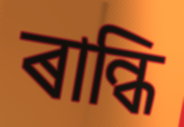
ৰান্ধি